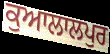
ਕੁਆਲਾਲਪੁਰ